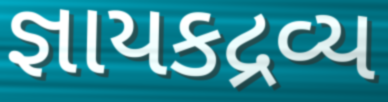
જ્ઞાયકદ્રવ્ય